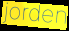
jorden